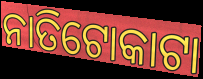
ନାତିଟୋକାଟା